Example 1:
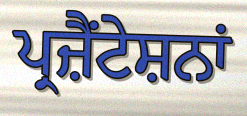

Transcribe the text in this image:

ਪ੍ਰਜ਼ੈਂਟੇਸ਼ਨਾਂ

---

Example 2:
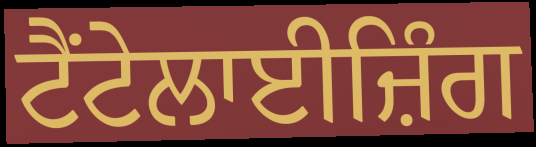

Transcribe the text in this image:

ਟੈਂਟੇਲਾਈਜ਼ਿੰਗ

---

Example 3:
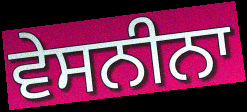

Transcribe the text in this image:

ਵੇਸਨੀਨਾ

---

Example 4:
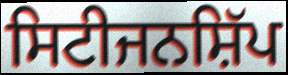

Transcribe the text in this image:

ਸਿਟੀਜਨਸ਼ਿੱਪ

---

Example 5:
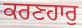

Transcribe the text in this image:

ਕਰਣਹਾਰੁ